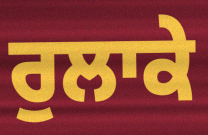
ਰੁਲਾਕੇ